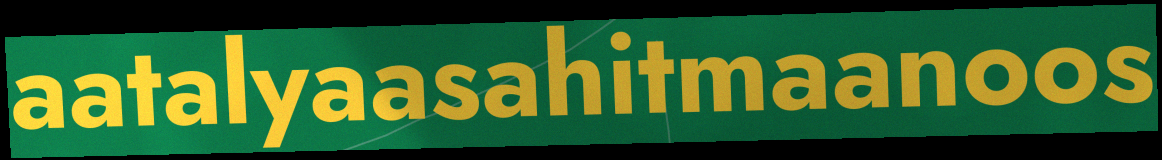
aatalyaasahitmaanoos